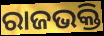
ରାଜଭକ୍ତି